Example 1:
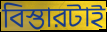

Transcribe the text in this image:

বিস্তারটাই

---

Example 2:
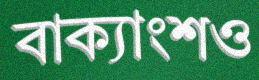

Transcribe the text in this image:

বাক্যাংশও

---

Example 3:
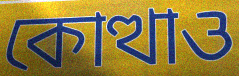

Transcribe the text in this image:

কোত্থাও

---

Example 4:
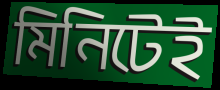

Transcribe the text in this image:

মিনিটেই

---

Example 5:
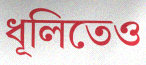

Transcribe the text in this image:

ধূলিতেও